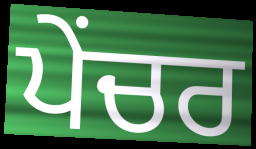
ਪੇਂਚਰ